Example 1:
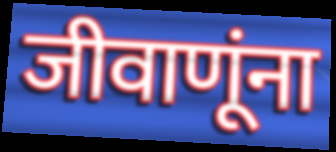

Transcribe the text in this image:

जीवाणूंना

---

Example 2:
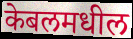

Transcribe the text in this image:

केबलमधील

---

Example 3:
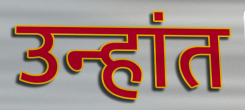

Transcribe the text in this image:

उन्हांत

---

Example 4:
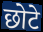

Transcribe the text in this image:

छोटे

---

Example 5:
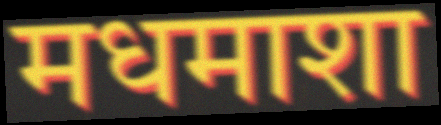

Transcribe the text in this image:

मधमाशा